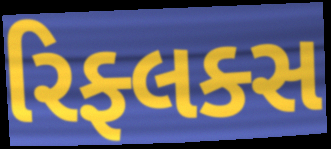
રિફ્લક્સ